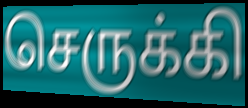
செருக்கி